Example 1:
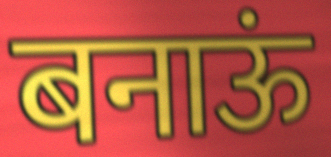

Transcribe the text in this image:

बनाऊं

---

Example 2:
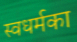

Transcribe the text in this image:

स्वधर्मका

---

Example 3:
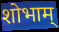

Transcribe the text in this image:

शोभाम्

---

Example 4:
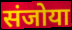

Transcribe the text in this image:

संजोया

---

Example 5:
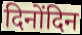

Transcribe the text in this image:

दिनोंदिन